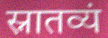
स्नातव्यं